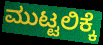
ಮುಟ್ಟಲಿಕ್ಕೆ